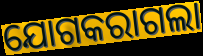
ଯୋଗକରାଗଲା